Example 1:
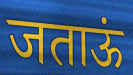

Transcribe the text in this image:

जताऊं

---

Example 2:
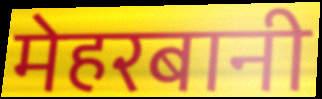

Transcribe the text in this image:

मेहरबानी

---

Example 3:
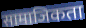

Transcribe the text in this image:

सामाजिकता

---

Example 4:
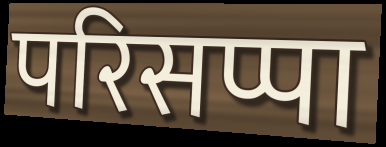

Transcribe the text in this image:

परिसप्पा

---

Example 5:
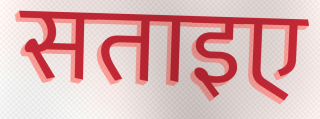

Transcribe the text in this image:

सताइए